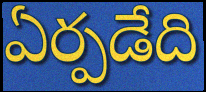
ఏర్పడేది